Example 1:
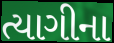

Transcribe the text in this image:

ત્યાગીના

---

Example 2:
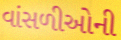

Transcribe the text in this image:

વાંસળીઓની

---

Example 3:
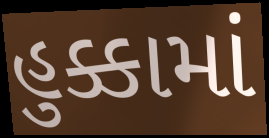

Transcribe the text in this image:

હુક્કામાં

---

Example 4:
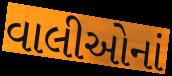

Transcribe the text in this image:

વાલીઓનાં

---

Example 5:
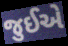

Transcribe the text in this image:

જુઈએ